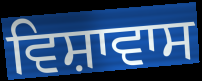
ਵਿਸ਼ਾਵਾਸ